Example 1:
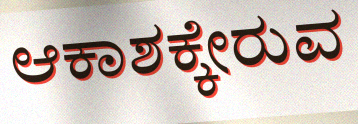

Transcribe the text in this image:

ಆಕಾಶಕ್ಕೇರುವ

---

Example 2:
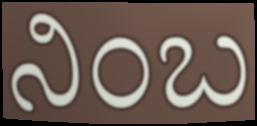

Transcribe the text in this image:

ನಿಂಬ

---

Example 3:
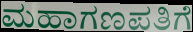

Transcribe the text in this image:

ಮಹಾಗಣಪತಿಗೆ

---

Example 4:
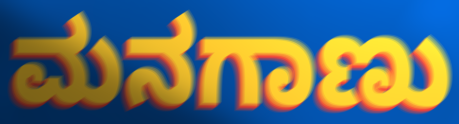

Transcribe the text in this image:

ಮನಗಾಣು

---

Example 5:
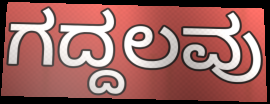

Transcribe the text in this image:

ಗದ್ದಲವು